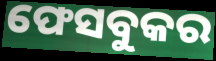
ଫେସବୁକର